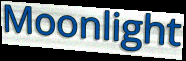
Moonlight